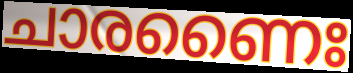
ചാരണൈഃ